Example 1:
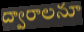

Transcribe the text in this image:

ద్వారాలనూ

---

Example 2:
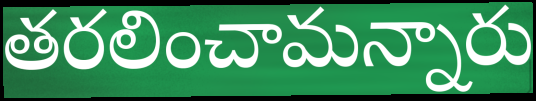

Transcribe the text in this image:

తరలించామన్నారు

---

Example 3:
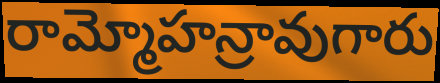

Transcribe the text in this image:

రామ్మోహన్రావుగారు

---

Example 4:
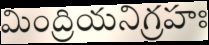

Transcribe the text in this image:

మింద్రియనిగ్రహః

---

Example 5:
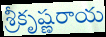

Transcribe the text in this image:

శ్రీకృష్ణరాయ